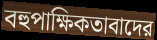
বহুপাক্ষিকতাবাদের